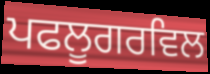
ਪਫਲੂਗਰਵਿਲ